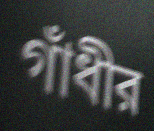
গাঁধীর